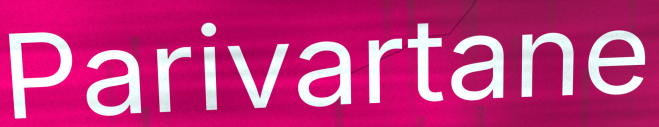
Parivartane